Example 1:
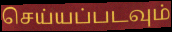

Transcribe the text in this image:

செய்யப்படவும்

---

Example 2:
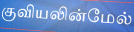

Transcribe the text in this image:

குவியலின்மேல்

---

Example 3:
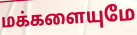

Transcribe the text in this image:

மக்களையுமே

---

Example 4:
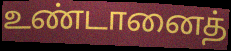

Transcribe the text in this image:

உண்டானைத்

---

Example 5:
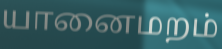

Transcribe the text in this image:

யானைமறம்